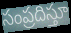
సంప్రదిస్తూ